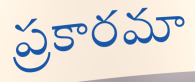
ప్రకారమా